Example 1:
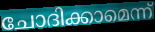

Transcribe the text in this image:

ചോദിക്കാമെന്ന്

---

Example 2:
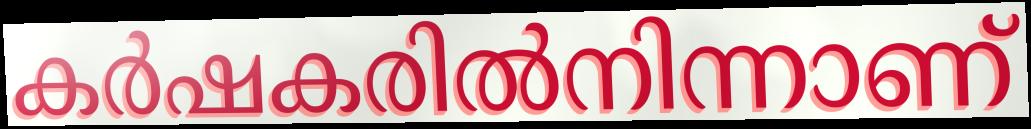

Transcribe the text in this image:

കർഷകരിൽനിന്നാണ്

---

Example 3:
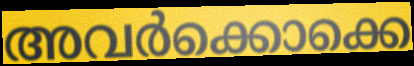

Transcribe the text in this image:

അവർക്കൊക്കെ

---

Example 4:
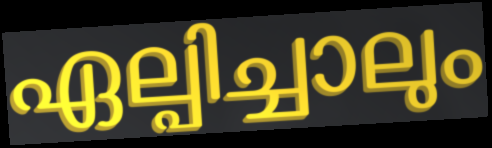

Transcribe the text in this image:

ഏല്പിച്ചാലും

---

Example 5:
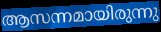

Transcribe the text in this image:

ആസന്നമായിരുന്നു